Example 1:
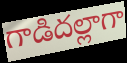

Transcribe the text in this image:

గాడిదల్లాగా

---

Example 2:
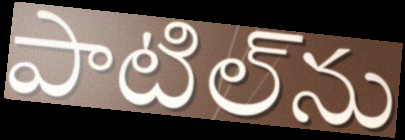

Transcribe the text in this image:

పాటిల్‌ను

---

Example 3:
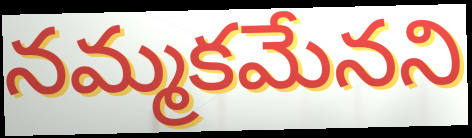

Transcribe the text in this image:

నమ్మకమేనని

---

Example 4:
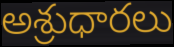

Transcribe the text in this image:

అశ్రుధారలు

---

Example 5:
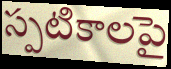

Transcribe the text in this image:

స్పటికాలపై